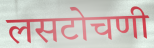
लसटोचणी